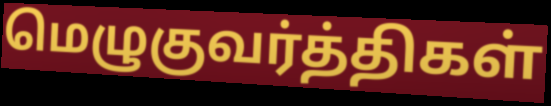
மெழுகுவர்த்திகள்